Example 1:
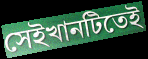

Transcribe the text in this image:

সেইখানটিতেই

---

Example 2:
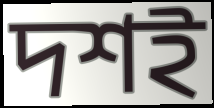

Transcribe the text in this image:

দশই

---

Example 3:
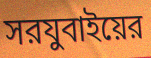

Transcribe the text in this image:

সরযুবাইয়ের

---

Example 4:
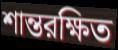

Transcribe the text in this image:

শান্তরক্ষিত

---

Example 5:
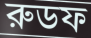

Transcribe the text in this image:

রুডফ